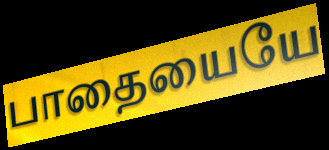
பாதையையே